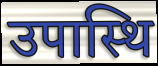
उपास्थि